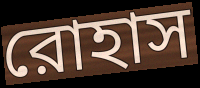
রোহাস